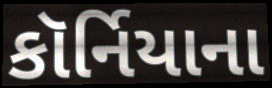
કૉર્નિયાના